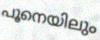
പൂനെയിലും